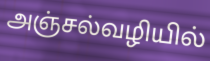
அஞ்சல்வழியில்